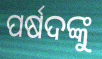
ପର୍ଷଦଙ୍କୁ